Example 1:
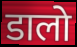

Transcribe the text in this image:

डालो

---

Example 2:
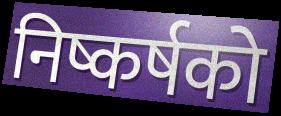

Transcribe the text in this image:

निष्कर्षको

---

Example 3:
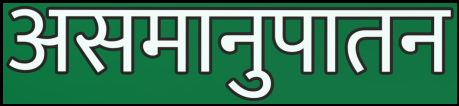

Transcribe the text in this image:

असमानुपातन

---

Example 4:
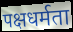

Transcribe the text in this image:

पक्षधर्मता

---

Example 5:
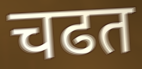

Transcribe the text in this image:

चढत